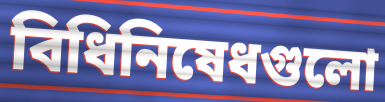
বিধিনিষেধগুলো